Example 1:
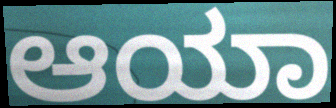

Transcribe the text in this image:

ಆಯಾ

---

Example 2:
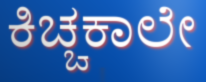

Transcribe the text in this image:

ಕಿಚ್ಚಕಾಲೇ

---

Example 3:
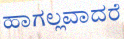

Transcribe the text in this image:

ಹಾಗಲ್ಲವಾದರೆ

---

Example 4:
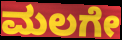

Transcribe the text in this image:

ಮಲಗೇ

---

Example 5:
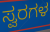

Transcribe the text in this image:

ಸ್ವರಗಳ